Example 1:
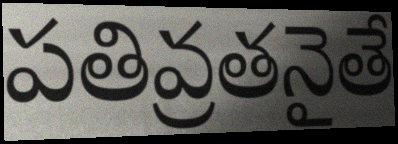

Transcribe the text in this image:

పతివ్రతనైతే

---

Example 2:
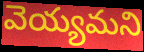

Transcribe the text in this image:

వెయ్యమని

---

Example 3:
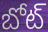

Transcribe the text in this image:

బోట్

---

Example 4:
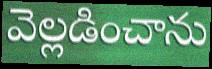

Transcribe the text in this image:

వెల్లడించాను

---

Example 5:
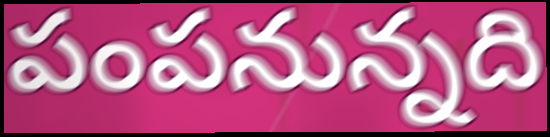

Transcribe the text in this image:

పంపనున్నది